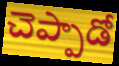
చెప్పాడో